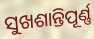
ସୁଖଶାନ୍ତିପୂର୍ଣ୍ଣ